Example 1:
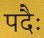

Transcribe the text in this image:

पदैः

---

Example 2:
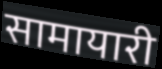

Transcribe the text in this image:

सामायारी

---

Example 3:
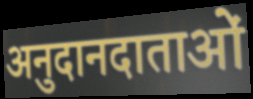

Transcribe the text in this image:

अनुदानदाताओं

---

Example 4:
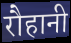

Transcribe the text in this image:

रौहानी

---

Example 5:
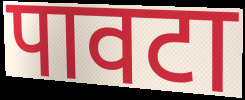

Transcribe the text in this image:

पावटा